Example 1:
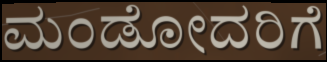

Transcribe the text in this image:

ಮಂಡೋದರಿಗೆ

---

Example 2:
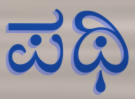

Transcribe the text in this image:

ಪಥಿ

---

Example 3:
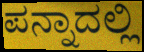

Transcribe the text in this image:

ಪನ್ನಾದಲ್ಲಿ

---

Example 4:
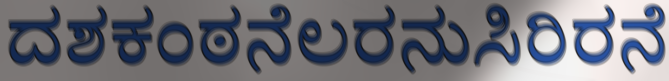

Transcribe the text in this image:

ದಶಕಂಠನೆಲರನುಸಿರಿರನೆ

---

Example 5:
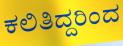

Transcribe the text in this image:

ಕಲಿತಿದ್ದರಿಂದ